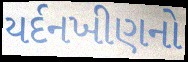
યર્દનખીણનો